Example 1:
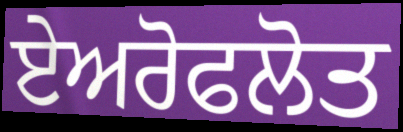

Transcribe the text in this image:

ਏਅਰੋਫਲੋਤ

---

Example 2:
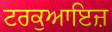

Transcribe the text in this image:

ਟਰਕੁਆਇਜ਼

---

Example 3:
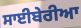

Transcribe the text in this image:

ਸਾਈਬੇਰੀਆ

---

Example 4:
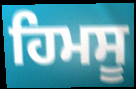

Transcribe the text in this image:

ਹਿਮਸੂ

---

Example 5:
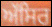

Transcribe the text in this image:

ਅੱਸਿਰ